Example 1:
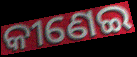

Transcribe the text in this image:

କୀଣେଇ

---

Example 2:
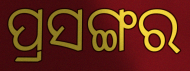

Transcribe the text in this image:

ପ୍ରସଙ୍ଗର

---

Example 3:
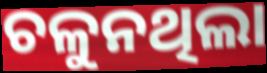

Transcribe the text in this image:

ଚଳୁନଥିଲା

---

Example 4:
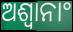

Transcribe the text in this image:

ଅଶ୍ଵାନାଂ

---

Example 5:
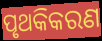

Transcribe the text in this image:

ପୃଥକିକରଣ